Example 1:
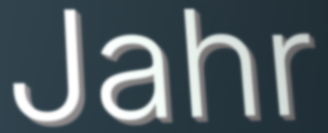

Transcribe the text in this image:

Jahr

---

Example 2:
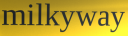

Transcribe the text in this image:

milkyway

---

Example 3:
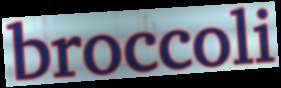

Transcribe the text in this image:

broccoli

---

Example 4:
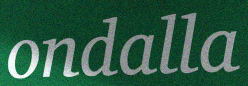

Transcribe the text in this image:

ondalla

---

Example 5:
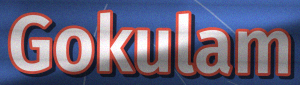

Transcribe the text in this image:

Gokulam